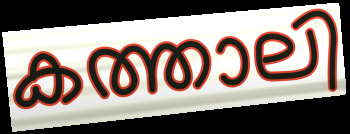
കത്താലി